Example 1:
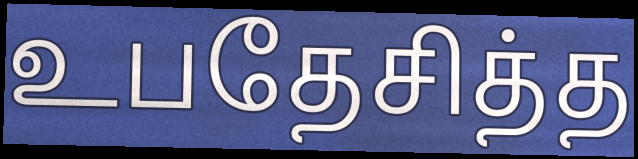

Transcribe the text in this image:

உபதேசித்த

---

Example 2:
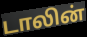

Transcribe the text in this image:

டாலின்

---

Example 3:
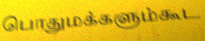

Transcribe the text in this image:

பொதுமக்களும்கூட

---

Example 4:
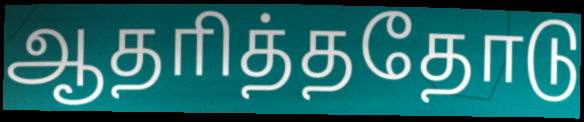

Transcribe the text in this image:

ஆதரித்ததோடு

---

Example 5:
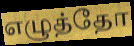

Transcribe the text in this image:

எழுத்தோ